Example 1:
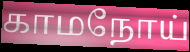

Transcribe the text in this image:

காமநோய்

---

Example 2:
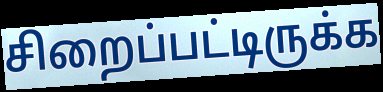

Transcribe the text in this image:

சிறைப்பட்டிருக்க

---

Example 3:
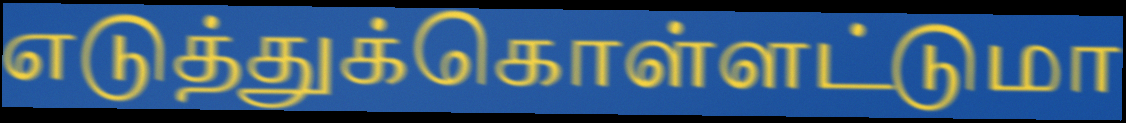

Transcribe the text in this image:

எடுத்துக்கொள்ளட்டுமா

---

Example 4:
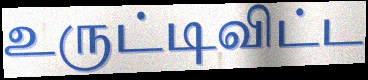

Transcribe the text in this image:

உருட்டிவிட்ட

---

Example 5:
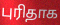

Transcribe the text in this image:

புரிதாக